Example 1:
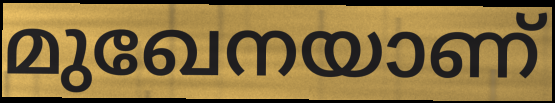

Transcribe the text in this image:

മുഖേനയാണ്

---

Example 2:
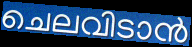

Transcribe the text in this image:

ചെലവിടാൻ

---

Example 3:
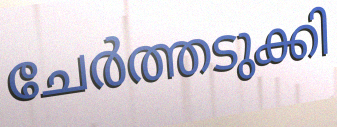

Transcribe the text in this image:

ചേർത്തടുക്കി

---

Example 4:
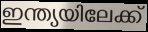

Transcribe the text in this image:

ഇന്ത്യയിലേക്ക്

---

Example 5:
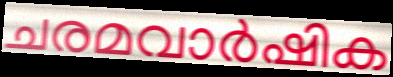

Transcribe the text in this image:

ചരമവാർഷിക